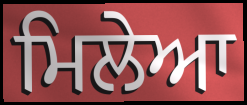
ਮਿਲੇਆ